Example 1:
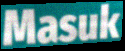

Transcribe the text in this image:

Masuk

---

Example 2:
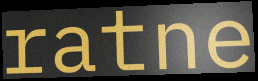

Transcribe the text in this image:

ratne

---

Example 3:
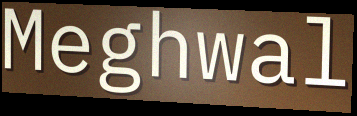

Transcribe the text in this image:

Meghwal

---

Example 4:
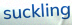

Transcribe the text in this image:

suckling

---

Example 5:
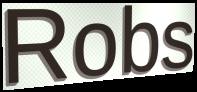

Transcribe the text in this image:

Robs